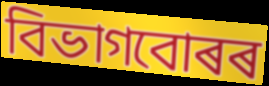
বিভাগবোৰৰ